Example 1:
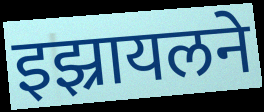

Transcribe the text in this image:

इझ्रायलने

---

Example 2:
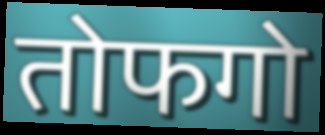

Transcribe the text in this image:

तोफगो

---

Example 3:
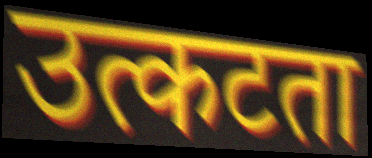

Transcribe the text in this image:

उत्कटता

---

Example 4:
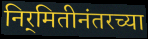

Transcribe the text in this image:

निर्मितीनंतरच्या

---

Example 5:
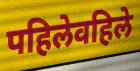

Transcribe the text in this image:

पहिलेवहिले